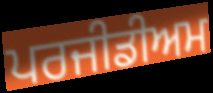
ਪਰਜੀਡੀਅਮ